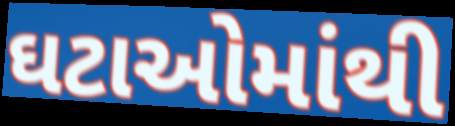
ઘટાઓમાંથી